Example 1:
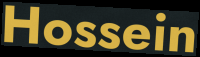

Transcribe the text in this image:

Hossein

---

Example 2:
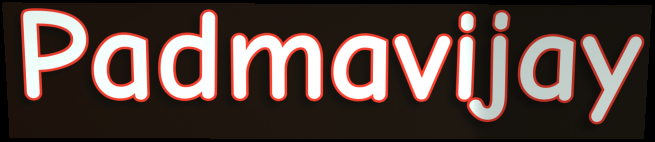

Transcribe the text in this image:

Padmavijay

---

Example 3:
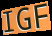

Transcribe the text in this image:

IGF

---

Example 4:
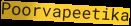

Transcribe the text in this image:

Poorvapeetika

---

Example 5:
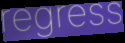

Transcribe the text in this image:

regress